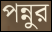
পন্নুর